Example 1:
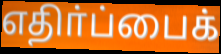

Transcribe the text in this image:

எதிர்ப்பைக்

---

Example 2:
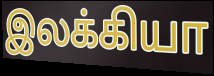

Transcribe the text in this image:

இலக்கியா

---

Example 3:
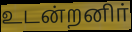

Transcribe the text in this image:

உடன்றனிர்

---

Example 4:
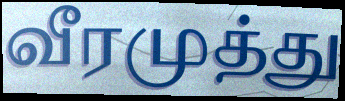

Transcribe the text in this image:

வீரமுத்து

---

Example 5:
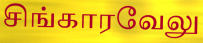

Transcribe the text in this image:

சிங்காரவேலு